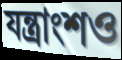
যন্ত্রাংশও